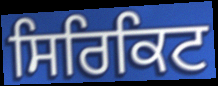
ਸਿਰਿਕਿਟ